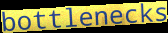
bottlenecks